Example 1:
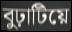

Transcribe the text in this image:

বুঢ়াটিয়ে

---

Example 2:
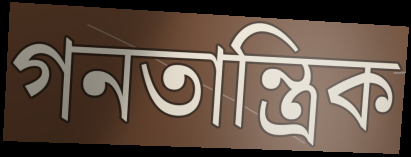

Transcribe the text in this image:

গনতান্ত্ৰিক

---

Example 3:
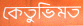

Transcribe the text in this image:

কেতুভিমত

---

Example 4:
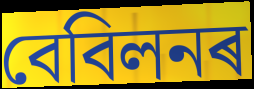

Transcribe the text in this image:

বেবিলনৰ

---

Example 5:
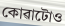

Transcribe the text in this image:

কোৱাটোও